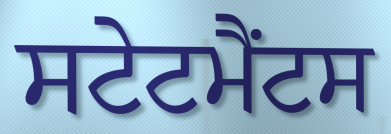
ਸਟੇਟਮੈਂਟਸ